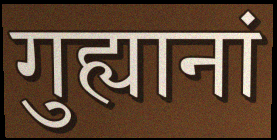
गुह्यानां